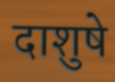
दाशुषे